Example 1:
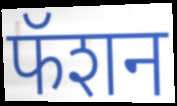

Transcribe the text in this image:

फॅशन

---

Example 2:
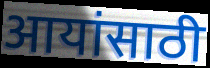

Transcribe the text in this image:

आयांसाठी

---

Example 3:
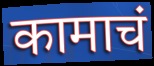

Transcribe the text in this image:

कामाचं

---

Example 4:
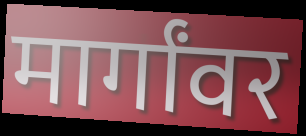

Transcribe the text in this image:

मार्गांवर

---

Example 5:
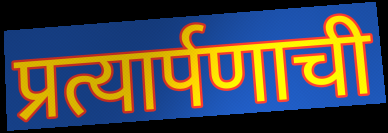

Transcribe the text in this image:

प्रत्यार्पणाची